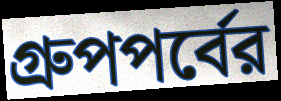
গ্রুপপর্বের